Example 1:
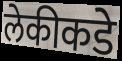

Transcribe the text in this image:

लेकीकडे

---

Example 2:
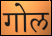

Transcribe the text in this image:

गोल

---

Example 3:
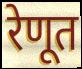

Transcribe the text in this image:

रेणूत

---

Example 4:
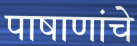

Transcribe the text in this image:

पाषाणांचे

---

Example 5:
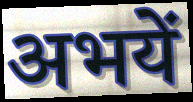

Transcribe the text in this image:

अभयें